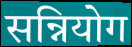
सन्नियोग